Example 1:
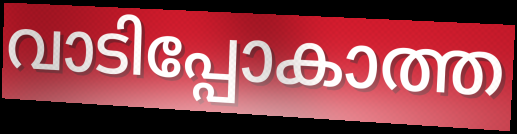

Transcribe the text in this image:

വാടിപ്പോകാത്ത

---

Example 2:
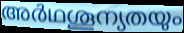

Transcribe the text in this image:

അർഥശൂന്യതയും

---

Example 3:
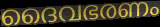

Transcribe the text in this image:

ദൈവഭരണം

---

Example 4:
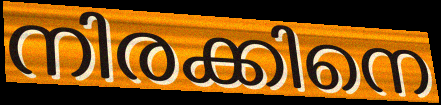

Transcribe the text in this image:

നിരക്കിനെ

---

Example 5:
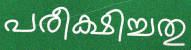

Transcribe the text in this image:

പരീക്ഷിച്ചതു